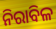
ନିରାବିଳ